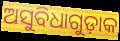
ଅସୁବିଧାଗୁଡ଼ାକ